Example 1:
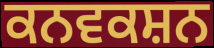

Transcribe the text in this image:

ਕਨਵਕਸ਼ਨ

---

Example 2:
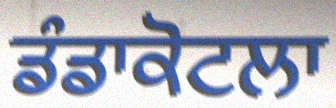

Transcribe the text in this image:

ਡੰਡਾਕੋਟਲਾ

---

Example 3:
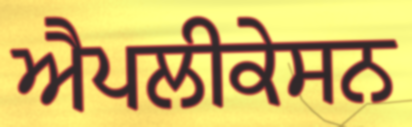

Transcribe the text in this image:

ਐਪਲੀਕੇਸਨ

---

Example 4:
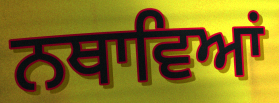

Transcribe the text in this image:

ਨਥਾਵਿਆਂ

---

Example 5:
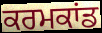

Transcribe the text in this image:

ਕਰਮਕਾਂਡ